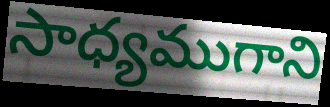
సాధ్యముగాని